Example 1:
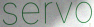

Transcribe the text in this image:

servo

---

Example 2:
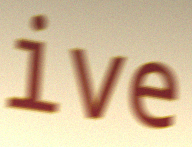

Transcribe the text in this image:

ive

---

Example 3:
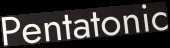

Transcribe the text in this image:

Pentatonic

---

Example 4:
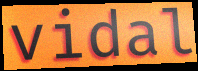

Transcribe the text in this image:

vidal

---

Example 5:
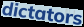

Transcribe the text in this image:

dictators